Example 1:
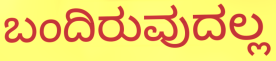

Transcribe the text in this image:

ಬಂದಿರುವುದಲ್ಲ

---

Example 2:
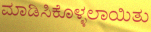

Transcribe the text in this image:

ಮಾಡಿಸಿಕೊಳ್ಳಲಾಯಿತು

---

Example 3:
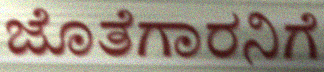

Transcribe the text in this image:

ಜೊತೆಗಾರನಿಗೆ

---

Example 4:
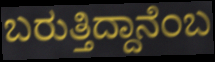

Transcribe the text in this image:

ಬರುತ್ತಿದ್ದಾನೆಂಬ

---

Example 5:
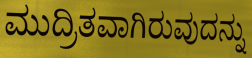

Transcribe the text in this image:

ಮುದ್ರಿತವಾಗಿರುವುದನ್ನು